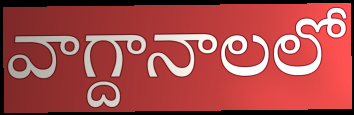
వాగ్దానాలలో